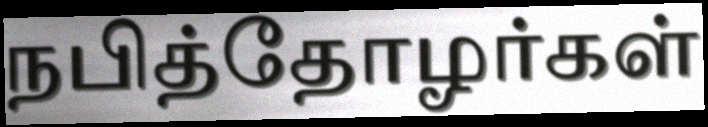
நபித்தோழர்கள்